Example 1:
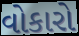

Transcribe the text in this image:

વોકારો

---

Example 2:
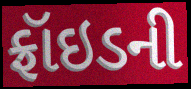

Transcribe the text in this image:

ફ્રૉઇડની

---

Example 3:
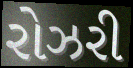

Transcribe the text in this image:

રોઝરી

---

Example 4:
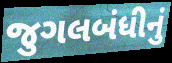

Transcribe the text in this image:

જુગલબંધીનું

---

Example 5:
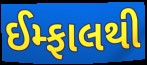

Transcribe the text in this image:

ઈમ્ફાલથી